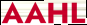
AAHL